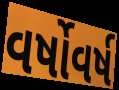
વર્ષોવર્ષ